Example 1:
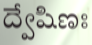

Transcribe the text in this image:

ద్వేషిణః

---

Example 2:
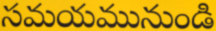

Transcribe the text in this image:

సమయమునుండి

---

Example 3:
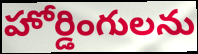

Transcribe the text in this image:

హోర్డింగులను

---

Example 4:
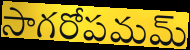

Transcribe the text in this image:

సాగరోపమమ్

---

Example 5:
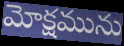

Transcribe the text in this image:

మోక్షమును